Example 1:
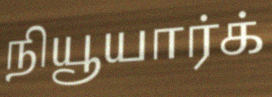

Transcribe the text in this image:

நியூயார்க்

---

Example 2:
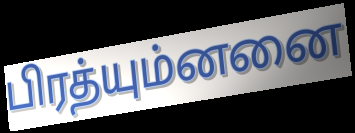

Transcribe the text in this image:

பிரத்யும்னனை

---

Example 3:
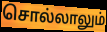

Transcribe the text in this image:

சொல்லாலும்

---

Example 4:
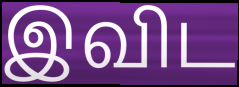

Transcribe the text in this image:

இவிட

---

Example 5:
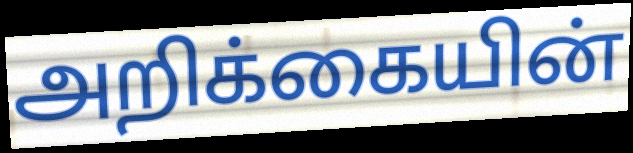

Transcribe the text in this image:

அறிக்கையின்